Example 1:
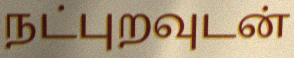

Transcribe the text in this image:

நட்புறவுடன்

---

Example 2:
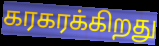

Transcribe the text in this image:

கரகரக்கிறது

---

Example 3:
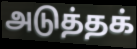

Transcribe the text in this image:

அடுத்தக்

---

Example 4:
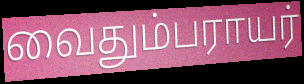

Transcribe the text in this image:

வைதும்பராயர்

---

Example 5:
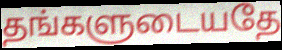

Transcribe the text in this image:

தங்களுடையதே